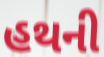
હથની